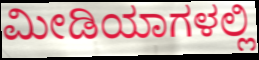
ಮೀಡಿಯಾಗಳಲ್ಲಿ